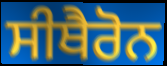
ਸੀਥੈਰੋਨ